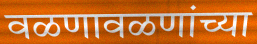
वळणावळणांच्या